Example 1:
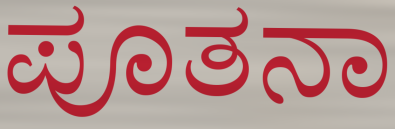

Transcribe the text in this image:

ಪೂತನಾ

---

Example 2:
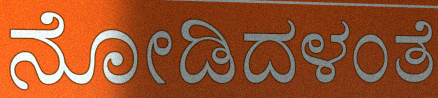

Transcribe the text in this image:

ನೋಡಿದಳಂತೆ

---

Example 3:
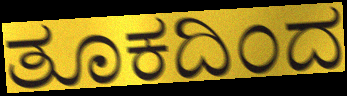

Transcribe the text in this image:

ತೂಕದಿಂದ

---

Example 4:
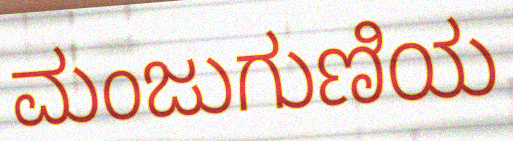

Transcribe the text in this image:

ಮಂಜುಗುಣಿಯ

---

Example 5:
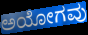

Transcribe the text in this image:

ಅಯೋಗವು